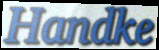
Handke